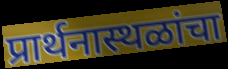
प्रार्थनास्थळांचा